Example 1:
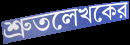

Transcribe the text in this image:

শ্রুতলেখকের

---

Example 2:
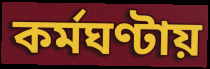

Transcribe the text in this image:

কর্মঘণ্টায়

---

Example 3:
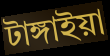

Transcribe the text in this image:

টাঙ্গাইয়া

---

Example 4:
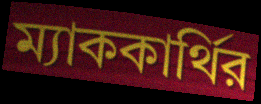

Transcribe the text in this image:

ম্যাককার্থির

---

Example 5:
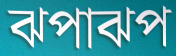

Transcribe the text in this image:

ঝপাঝপ